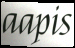
aapis